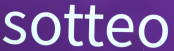
sotteo